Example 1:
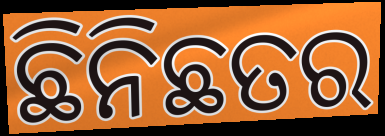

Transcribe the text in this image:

ଛିନିଛତର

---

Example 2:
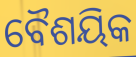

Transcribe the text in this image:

ବୈଶୟିକ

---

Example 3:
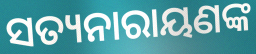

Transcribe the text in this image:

ସତ୍ୟନାରାୟଣଙ୍କ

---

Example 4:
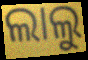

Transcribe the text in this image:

ଲାଲୁ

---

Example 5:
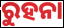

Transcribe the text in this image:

ରୁହନା